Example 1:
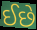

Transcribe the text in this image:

ઈછે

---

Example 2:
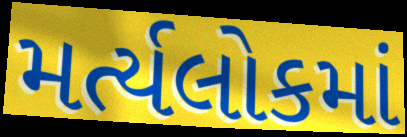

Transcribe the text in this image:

મર્ત્યલોકમાં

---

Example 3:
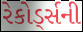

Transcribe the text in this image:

રેકોર્ડ્સની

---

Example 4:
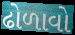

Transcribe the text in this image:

ઢોળાવો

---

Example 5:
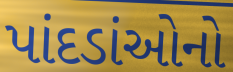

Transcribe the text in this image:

પાંદડાંઓનો